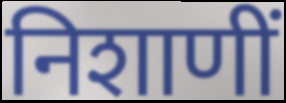
निशाणीं